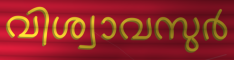
വിശ്വാവസുർ